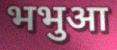
भभुआ